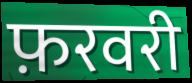
फ़रवरी